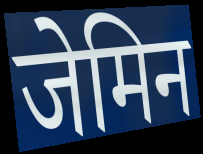
जेमिन